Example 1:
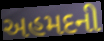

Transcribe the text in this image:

અહમદની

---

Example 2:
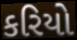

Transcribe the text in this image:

કરિયો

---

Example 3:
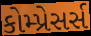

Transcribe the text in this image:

કોમ્પ્રેસર્સ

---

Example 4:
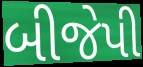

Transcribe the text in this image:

બીજેપી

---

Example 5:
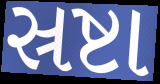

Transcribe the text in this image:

સ્રષ્ટા